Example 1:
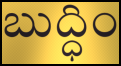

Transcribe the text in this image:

బుద్ధిం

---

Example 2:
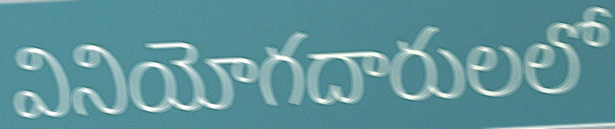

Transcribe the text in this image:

వినియోగదారులలో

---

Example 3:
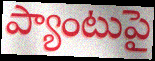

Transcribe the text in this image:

ప్యాంటుపై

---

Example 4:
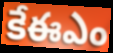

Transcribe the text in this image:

కేఈఎం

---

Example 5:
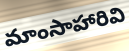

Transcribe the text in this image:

మాంసాహారివి